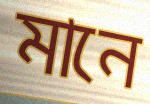
মানে